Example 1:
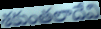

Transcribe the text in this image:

శకుంతలాదేవి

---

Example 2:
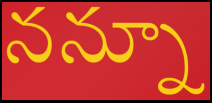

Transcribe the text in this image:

నన్నూ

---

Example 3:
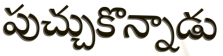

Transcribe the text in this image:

పుచ్చుకొన్నాడు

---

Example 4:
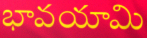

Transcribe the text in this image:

భావయామి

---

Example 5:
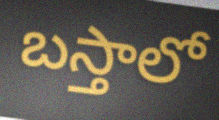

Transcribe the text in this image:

బస్తాలో